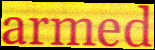
armed